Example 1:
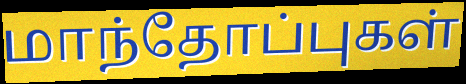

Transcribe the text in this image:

மாந்தோப்புகள்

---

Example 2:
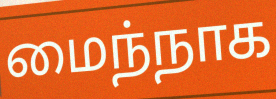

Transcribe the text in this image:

மைந்நாக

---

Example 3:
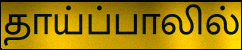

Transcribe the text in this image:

தாய்ப்பாலில்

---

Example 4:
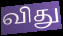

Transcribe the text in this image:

விது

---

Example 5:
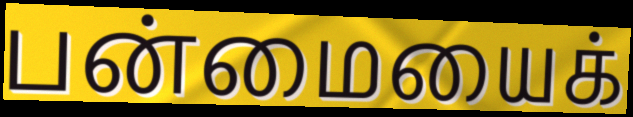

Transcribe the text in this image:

பன்மையைக்